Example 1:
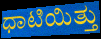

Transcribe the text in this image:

ಧಾಟಿಯಿತ್ತು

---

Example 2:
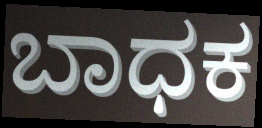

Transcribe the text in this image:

ಬಾಧಕ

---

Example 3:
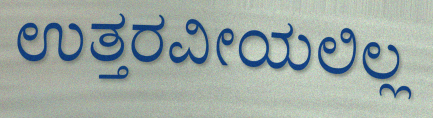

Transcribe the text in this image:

ಉತ್ತರವೀಯಲಿಲ್ಲ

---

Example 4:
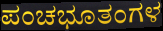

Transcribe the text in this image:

ಪಂಚಭೂತಂಗಳ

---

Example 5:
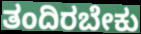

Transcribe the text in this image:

ತಂದಿರಬೇಕು